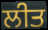
ਲੀਤ